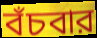
বঁচবার